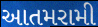
આતમરામી